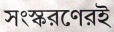
সংস্করণেরই